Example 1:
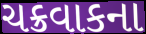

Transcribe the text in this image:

ચક્રવાકના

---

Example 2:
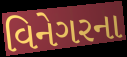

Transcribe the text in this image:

વિનેગરના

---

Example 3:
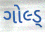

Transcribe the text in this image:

ગોલ્ડ્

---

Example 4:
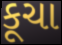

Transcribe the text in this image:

કૂચા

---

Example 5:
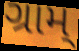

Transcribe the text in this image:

ગ્રામ્